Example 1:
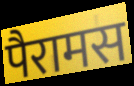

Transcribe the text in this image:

पैरामस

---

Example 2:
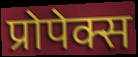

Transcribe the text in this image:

प्रोपेक्स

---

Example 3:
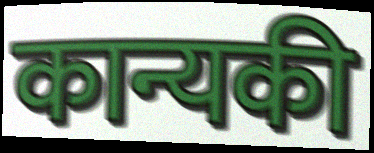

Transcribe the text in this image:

कान्यकी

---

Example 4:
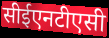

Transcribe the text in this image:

सीईएनटीएसी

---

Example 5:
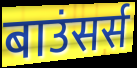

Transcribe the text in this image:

बाउंसर्स